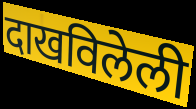
दाखविलेली